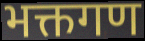
भक्तगण